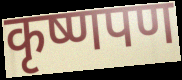
कृष्णपण